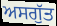
ਅਸਗੁੱਤ